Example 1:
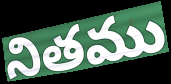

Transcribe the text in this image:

నితము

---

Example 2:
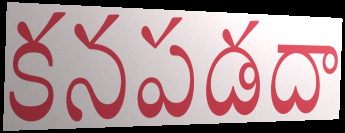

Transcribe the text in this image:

కనపడదా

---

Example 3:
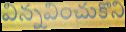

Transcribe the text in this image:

విన్నవించుకొని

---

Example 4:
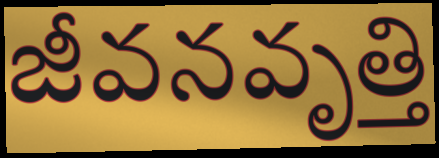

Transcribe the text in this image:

జీవనవృత్తి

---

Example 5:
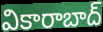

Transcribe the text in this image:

వికారాబాద్